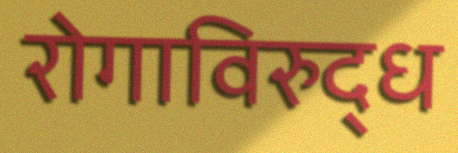
रोगाविरुद्ध